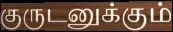
குருடனுக்கும்